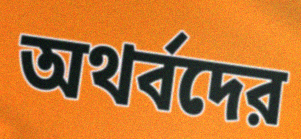
অথর্বদের